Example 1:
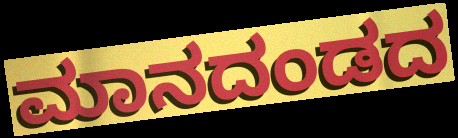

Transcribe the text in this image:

ಮಾನದಂಡದ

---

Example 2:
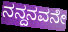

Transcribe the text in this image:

ನನ್ದನವನೇ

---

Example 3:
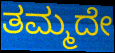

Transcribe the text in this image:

ತಮ್ಮದೇ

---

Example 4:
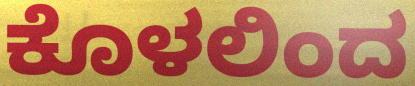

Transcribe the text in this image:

ಕೊಳಲಿಂದ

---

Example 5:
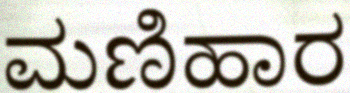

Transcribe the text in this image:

ಮಣಿಹಾರ